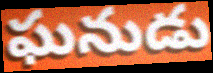
ఘనుడు